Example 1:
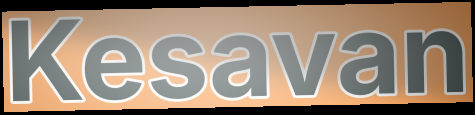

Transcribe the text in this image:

Kesavan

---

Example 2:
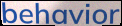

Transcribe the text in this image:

behavior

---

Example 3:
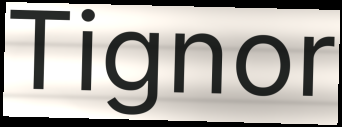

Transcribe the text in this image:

Tignor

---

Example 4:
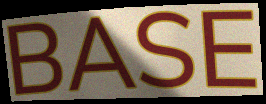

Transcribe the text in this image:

BASE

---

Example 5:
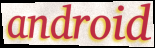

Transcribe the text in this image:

android